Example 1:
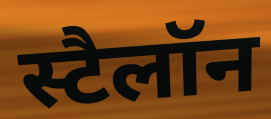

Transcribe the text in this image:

स्टैलॉन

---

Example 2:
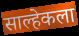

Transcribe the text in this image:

साल्हेकला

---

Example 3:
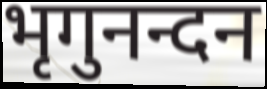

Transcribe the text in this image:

भृगुनन्दन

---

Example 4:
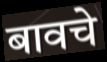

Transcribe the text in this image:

बावचे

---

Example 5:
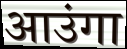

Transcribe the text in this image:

आउंगा